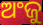
ଅଂଜୁ